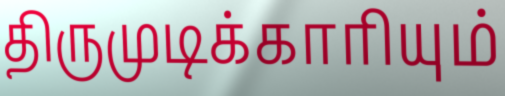
திருமுடிக்காரியும்